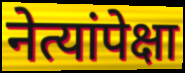
नेत्यांपेक्षा